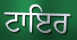
ਟਾਇਰ